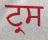
ਟ੍ਰਸ